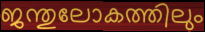
ജന്തുലോകത്തിലും